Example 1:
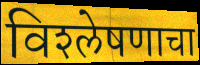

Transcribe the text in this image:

विश्लेषणाचा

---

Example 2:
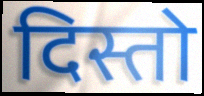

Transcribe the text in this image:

दिस्तो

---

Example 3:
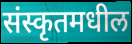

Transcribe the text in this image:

संस्कृतमधील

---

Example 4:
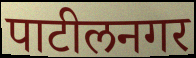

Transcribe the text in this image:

पाटीलनगर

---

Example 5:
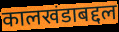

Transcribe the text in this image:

कालखंडाबद्दल